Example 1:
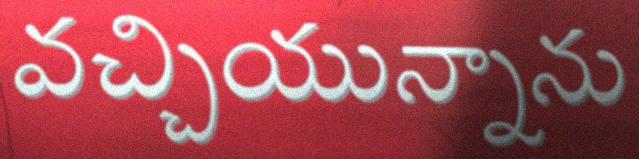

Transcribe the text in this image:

వచ్చియున్నాను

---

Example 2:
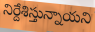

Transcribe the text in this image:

నిర్దేశిస్తున్నాయని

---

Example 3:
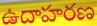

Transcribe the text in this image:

ఉదాహరణ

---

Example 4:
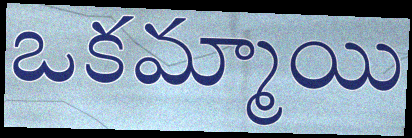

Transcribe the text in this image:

ఒకమ్మాయి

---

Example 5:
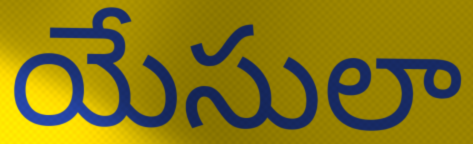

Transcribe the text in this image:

యేసులా